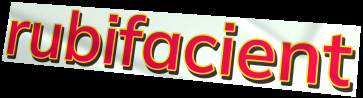
rubifacient